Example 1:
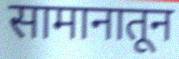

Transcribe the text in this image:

सामानातून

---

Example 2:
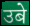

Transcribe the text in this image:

उबे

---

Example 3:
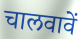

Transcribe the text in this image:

चालवावें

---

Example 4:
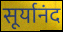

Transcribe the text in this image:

सूर्यानंद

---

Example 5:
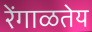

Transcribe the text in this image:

रेंगाळतेय